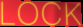
LOCK